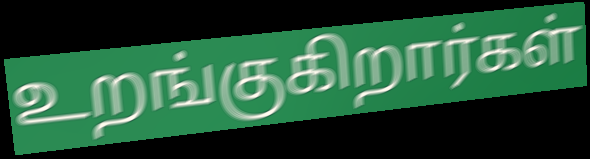
உறங்குகிறார்கள்